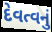
દેવત્વનું